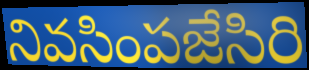
నివసింపజేసిరి